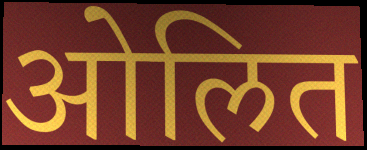
ओलित